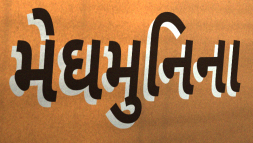
મેઘમુનિના